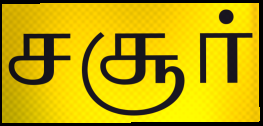
சசூர்